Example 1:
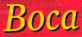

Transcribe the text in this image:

Boca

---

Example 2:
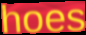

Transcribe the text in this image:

hoes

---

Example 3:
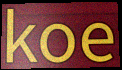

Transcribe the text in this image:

koe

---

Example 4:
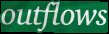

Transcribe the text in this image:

outflows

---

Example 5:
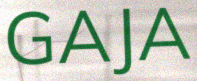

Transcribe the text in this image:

GAJA